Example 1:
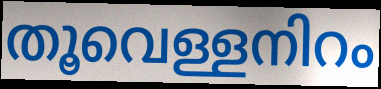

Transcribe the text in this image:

തൂവെള്ളനിറം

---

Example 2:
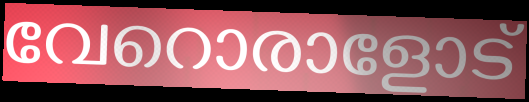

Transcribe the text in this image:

വേറൊരാളോട്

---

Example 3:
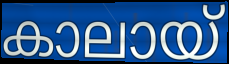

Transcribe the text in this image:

കാലായ്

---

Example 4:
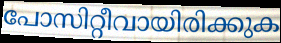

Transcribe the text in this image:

പോസിറ്റീവായിരിക്കുക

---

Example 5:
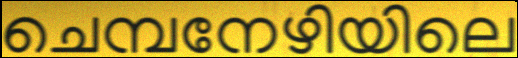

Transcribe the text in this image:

ചെമ്പനേഴിയിലെ